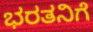
ಭರತನಿಗೆ